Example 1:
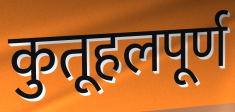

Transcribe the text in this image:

कुतूहलपूर्ण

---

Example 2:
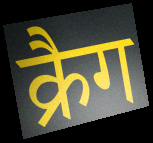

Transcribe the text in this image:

क्रैग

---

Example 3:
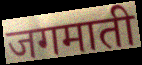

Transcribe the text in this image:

जगमाती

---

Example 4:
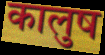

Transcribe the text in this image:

कालुष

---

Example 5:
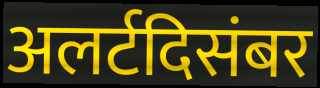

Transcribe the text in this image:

अलर्टदिसंबर